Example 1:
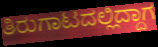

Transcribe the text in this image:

ತಿರುಗಾಟದಲ್ಲಿದ್ದಾಗ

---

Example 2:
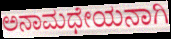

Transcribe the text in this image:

ಅನಾಮಧೇಯನಾಗಿ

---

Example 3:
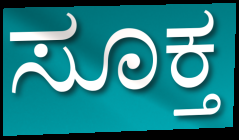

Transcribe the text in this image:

ಸೂಕ್ತ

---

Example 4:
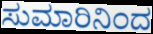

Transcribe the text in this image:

ಸುಮಾರಿನಿಂದ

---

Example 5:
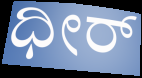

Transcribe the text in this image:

ಧೀರ್